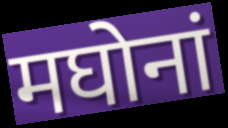
मघोनां